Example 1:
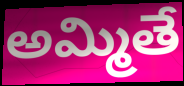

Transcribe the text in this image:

అమ్మితే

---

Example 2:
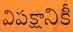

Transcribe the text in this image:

విపక్షానికీ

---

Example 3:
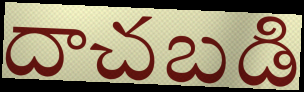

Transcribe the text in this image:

దాచబడి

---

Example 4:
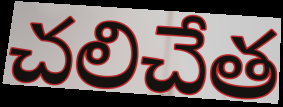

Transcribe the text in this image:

చలిచేత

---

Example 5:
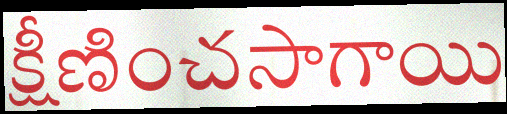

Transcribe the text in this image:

క్షీణించసాగాయి